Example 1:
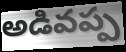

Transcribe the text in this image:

అడివప్ప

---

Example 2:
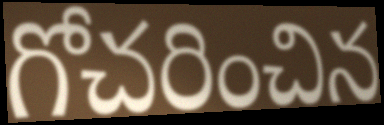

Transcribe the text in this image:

గోచరించిన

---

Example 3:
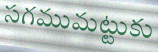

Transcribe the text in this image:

సగముమట్టుకు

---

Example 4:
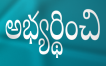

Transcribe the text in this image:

అభ్యర్థించి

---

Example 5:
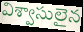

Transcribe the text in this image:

విశ్వాసులైన